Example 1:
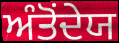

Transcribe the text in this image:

ਅੰਤੋਂਦੇਯ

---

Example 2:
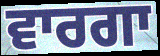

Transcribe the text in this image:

ਵਾਰਗਾ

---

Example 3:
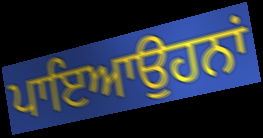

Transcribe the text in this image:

ਪਾਇਆਉਹਨਾਂ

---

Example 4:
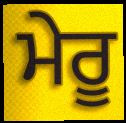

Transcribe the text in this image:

ਮੇਰੂ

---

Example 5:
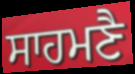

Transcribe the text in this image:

ਸਾਹਮਣੈ